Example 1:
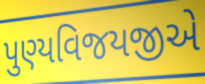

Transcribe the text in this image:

પુણ્યવિજયજીએ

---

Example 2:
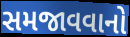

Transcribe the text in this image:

સમજાવવાનો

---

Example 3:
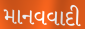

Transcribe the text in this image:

માનવવાદી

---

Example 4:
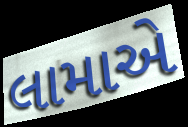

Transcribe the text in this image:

લામાએ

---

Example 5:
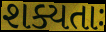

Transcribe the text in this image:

શક્યતાઃ